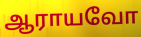
ஆராயவோ